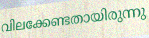
വിലക്കേണ്ടതായിരുന്നു